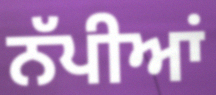
ਨੱਪੀਆਂ